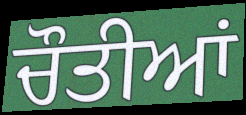
ਚੌਤੀਆਂ